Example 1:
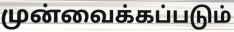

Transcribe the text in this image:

முன்வைக்கப்படும்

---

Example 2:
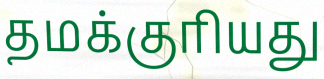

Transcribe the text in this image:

தமக்குரியது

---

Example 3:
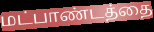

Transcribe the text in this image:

மட்பாண்டத்தை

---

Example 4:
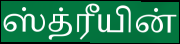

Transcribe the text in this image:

ஸ்த்ரீயின்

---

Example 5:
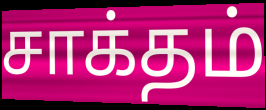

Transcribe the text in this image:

சாக்தம்